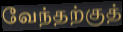
வேந்தற்குத்